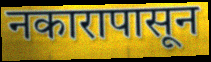
नकारापासून